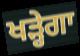
ਖੜ੍ਹੇਗਾ